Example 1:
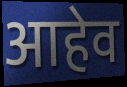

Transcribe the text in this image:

आहेव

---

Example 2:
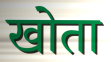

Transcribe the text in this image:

खोता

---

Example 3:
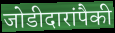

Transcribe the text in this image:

जोडीदारांपैकी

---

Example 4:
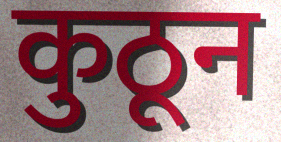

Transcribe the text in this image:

कुठून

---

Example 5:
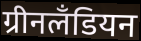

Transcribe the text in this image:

ग्रीनलॅंडियन